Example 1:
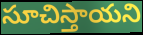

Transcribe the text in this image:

సూచిస్తాయని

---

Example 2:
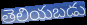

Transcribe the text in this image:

తెలియబడు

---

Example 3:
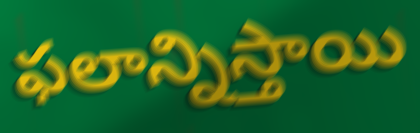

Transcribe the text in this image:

ఫలాన్నిస్తాయి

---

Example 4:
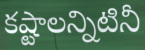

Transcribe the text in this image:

కష్టాలన్నిటినీ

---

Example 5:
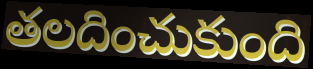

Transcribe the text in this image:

తలదించుకుంది